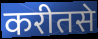
करीतसे